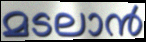
മടലാൻ